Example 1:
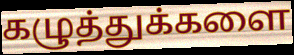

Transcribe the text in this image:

கழுத்துக்களை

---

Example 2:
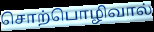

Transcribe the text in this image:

சொற்பொழிவால்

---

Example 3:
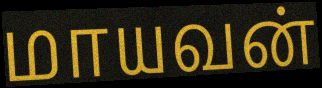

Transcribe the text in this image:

மாயவன்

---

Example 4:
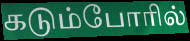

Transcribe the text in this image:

கடும்போரில்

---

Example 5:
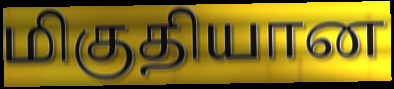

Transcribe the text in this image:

மிகுதியான